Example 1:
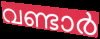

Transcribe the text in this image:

വണ്ടാർ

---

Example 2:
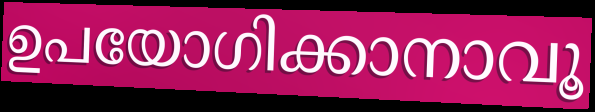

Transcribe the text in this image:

ഉപയോഗിക്കാനാവൂ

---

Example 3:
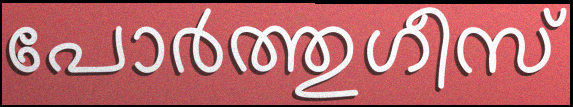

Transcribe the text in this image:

പോർത്തുഗീസ്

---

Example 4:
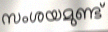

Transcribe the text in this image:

സംശയമുണ്ട്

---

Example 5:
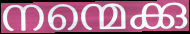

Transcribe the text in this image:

നന്മെക്കു